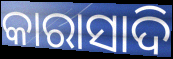
କାରାସାଦି